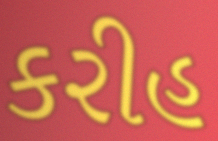
કરીહ